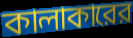
কালাকারের